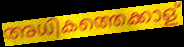
അധികത്തെക്കാള്